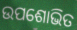
ଉପଶୋଭିତ